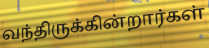
வந்திருக்கின்றார்கள்